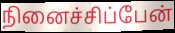
நினைச்சிப்பேன்